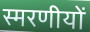
स्मरणीयों